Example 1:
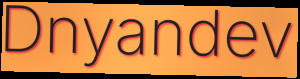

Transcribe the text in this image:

Dnyandev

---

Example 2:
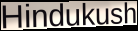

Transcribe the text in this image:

Hindukush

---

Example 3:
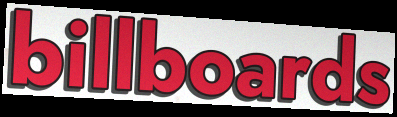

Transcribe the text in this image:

billboards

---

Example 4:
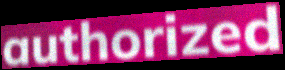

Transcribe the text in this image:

authorized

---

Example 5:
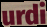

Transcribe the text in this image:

urdi